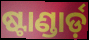
ଷ୍ଟାଣ୍ଡାର୍ଡ଼